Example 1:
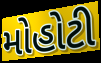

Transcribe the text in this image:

મોહોટી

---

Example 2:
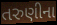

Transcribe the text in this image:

તરુણીના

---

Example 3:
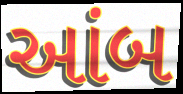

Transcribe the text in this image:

આંબ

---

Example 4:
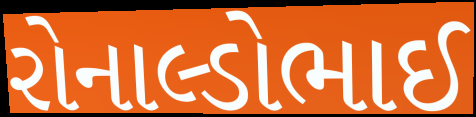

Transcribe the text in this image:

રોનાલ્ડોભાઈ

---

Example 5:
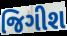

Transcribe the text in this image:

જિગીશ